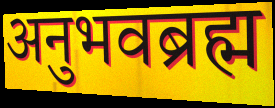
अनुभवब्रह्म